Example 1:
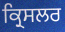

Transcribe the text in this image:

ਕ੍ਰਿਸਲਰ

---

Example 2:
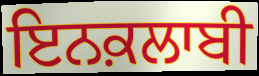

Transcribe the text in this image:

ਇਨਕ਼ਲਾਬੀ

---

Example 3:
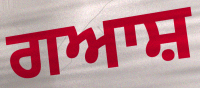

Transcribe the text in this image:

ਗਆਸ਼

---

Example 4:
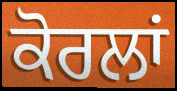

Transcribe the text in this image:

ਕੋਰਲਾਂ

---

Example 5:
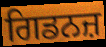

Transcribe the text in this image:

ਗਿਡਨਜ਼